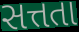
સત્તતા